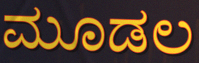
ಮೂಡಲ